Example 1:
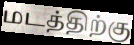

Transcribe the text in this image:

மடத்திற்கு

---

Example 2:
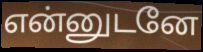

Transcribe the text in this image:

என்னுடனே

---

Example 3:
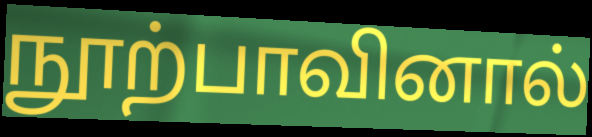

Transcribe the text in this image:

நூற்பாவினால்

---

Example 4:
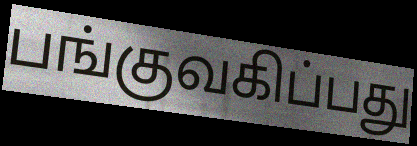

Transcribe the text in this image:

பங்குவகிப்பது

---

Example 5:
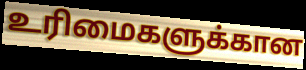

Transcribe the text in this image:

உரிமைகளுக்கான